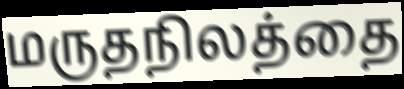
மருதநிலத்தை